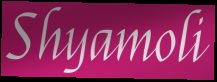
Shyamoli